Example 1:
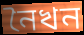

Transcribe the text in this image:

নৈখন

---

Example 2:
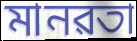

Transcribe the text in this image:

মানৱতা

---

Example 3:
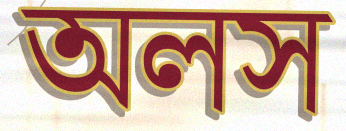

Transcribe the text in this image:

অলস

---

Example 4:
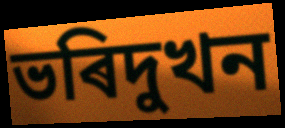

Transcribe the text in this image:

ভৰিদুখন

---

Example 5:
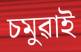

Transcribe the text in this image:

চমুৱাই